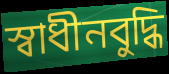
স্বাধীনবুদ্ধি